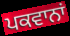
ਪਕਵਾਨਾਂ